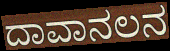
ದಾವಾನಲನ